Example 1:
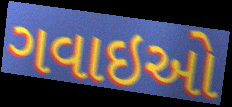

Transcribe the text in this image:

ગવાઇઓ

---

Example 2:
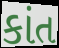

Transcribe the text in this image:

કાંત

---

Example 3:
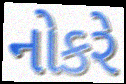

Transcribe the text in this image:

નોકરે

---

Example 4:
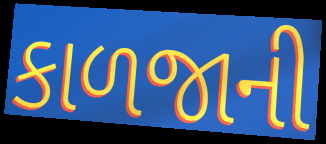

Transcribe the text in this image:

કાળજાની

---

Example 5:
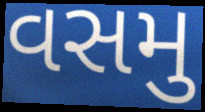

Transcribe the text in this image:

વસમુ